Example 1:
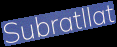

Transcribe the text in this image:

Subratllat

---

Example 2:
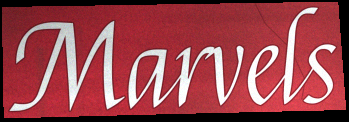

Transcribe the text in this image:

Marvels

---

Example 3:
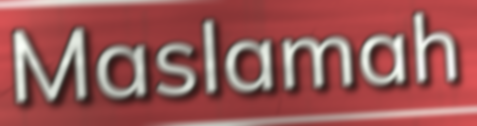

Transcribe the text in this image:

Maslamah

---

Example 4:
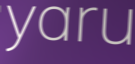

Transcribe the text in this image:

yaru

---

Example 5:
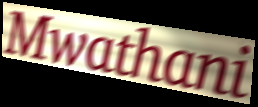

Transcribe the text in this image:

Mwathani